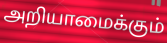
அறியாமைக்கும்